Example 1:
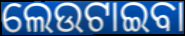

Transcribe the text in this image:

ଲେଉଟାଇବା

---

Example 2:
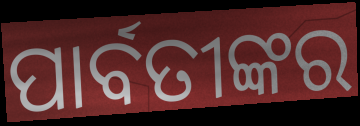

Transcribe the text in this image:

ପାର୍ବତୀଙ୍କର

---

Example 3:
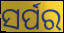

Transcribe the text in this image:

ସର୍ପର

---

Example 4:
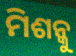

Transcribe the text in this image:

ମିଶନ୍କୁ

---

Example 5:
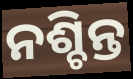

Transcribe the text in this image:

ନଶ୍ଚିନ୍ତ